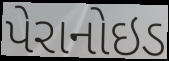
પેરાનોઇડ